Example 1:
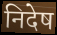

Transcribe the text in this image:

निदेष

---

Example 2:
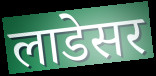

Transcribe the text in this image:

लाडेसर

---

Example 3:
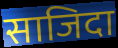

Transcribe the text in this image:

साजिदा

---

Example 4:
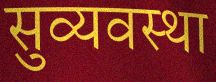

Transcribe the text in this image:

सुव्यवस्था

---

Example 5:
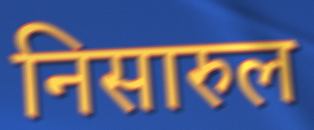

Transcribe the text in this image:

निसारुल